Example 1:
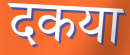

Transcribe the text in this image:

दकया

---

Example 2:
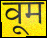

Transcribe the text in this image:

वूम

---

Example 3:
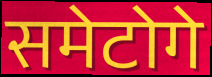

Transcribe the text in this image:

समेटोगे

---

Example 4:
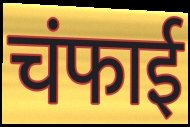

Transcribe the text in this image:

चंफाई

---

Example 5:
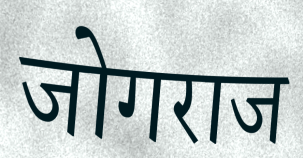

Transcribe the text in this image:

जोगराज